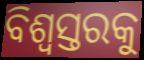
ବିଶ୍ୱସ୍ତରକୁ